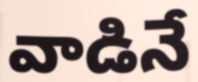
వాడినే